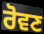
ਰੋਵਣ